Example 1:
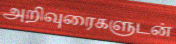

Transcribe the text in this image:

அறிவுரைகளுடன்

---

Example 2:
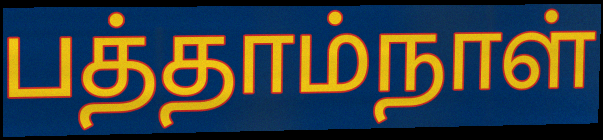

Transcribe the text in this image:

பத்தாம்நாள்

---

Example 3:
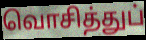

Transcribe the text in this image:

வொசித்துப்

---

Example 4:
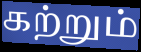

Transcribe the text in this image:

கற்றும்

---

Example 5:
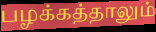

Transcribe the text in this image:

பழக்கத்தாலும்